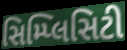
સિમ્પ્લિસિટી